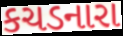
કચડનારા